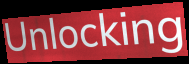
Unlocking